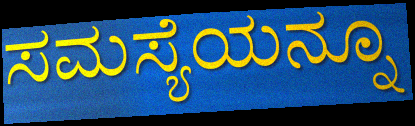
ಸಮಸ್ಯೆಯನ್ನೂ